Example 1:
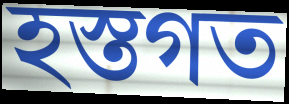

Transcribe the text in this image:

হস্তগত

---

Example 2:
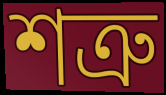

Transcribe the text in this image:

শত্ৰু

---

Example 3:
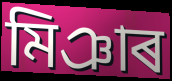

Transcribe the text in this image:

মিঞাৰ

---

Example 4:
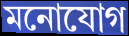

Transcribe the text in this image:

মনোযোগ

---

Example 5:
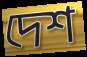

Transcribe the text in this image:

দেশ